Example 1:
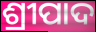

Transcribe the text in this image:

ଶ୍ରୀପାଦ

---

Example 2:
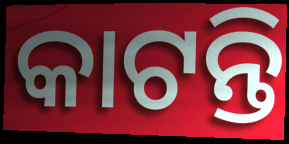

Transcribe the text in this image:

କାଟନ୍ତି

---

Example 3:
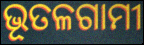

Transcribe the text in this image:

ଭୂତଳଗାମୀ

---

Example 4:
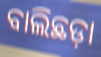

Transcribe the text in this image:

ବାଲିଛଡ଼ା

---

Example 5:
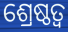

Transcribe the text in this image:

ଶ୍ରେଷ୍ଠତ୍ବ